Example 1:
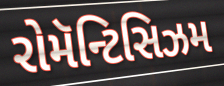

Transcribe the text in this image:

રોમૅન્ટિસિઝમ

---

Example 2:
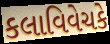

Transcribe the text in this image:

કલાવિવેચકે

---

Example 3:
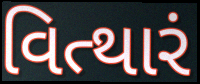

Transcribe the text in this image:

વિત્થારં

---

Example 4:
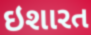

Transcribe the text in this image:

ઇશારત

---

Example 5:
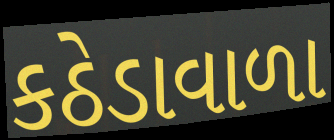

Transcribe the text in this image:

કઠેડાવાળા